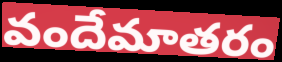
వందేమాతరం